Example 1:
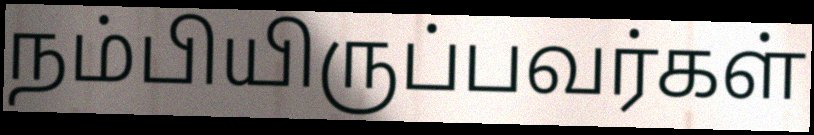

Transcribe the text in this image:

நம்பியிருப்பவர்கள்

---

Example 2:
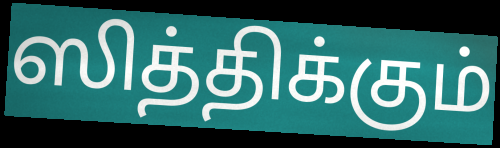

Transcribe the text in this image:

ஸித்திக்கும்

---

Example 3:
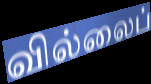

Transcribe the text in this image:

வில்லைப்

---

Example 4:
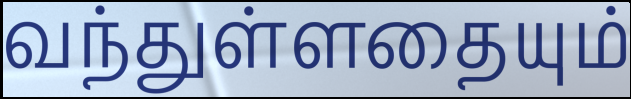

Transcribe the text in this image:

வந்துள்ளதையும்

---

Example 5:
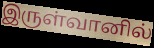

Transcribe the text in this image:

இருள்வானில்